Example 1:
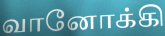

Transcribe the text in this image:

வானோக்கி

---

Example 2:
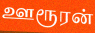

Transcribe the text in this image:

ஊரூரன்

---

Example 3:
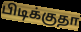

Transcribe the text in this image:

பிடிக்குதா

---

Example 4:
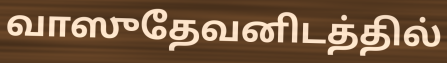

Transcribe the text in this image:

வாஸுதேவனிடத்தில்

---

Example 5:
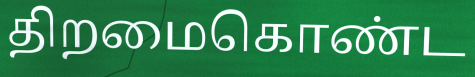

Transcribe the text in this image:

திறமைகொண்ட